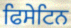
ਫਿਸੇਟਿਨ